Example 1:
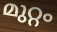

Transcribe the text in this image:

മുറ്റം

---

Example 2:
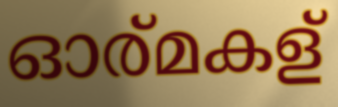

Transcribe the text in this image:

ഓര്മകള്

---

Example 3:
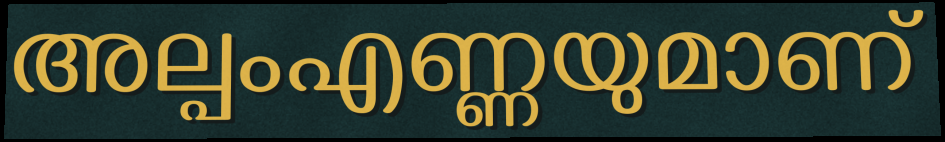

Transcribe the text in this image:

അല്പംഎണ്ണയുമാണ്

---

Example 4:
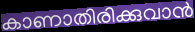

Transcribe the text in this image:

കാണാതിരിക്കുവാൻ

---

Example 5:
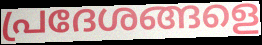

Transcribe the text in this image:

പ്രദേശങ്ങളെ